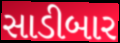
સાડીબાર